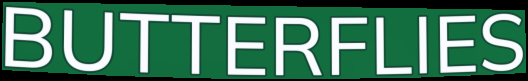
BUTTERFLIES